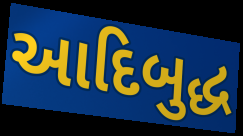
આદિબુદ્ધ